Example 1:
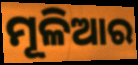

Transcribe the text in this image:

ମୂଳିଆର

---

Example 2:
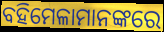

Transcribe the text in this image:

ବହିମେଳାମାନଙ୍କରେ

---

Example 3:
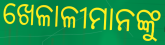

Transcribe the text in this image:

ଖେଳାଳୀମାନଙ୍କୁ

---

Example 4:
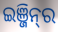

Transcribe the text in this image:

ଇଞ୍ଜିନ୍‍ର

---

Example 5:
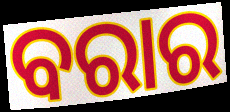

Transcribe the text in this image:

ବରାର